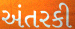
અંતરકી